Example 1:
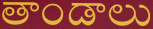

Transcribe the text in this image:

తాండాలు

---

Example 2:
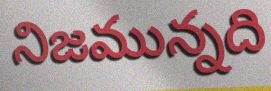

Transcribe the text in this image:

నిజమున్నది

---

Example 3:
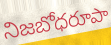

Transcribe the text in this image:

నిజబోధరూపా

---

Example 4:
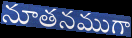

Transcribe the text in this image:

నూతనముగా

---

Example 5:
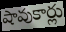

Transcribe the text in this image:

షావుకార్లు